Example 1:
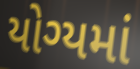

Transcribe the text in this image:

યોગ્યમાં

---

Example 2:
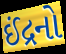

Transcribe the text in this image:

ઈંદ્રનો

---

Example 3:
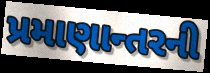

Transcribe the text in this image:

પ્રમાણાન્તરની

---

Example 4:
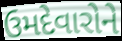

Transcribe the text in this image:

ઉમદેવારોને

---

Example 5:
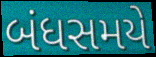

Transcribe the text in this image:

બંધસમયે